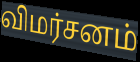
விமர்சனம்